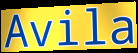
Avila